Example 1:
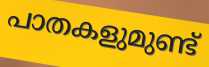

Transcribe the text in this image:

പാതകളുമുണ്ട്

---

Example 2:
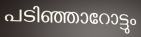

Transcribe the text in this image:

പടിഞ്ഞാറോട്ടും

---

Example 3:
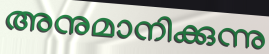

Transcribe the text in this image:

അനുമാനിക്കുന്നു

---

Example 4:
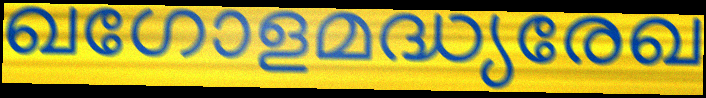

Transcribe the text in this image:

ഖഗോളമദ്ധ്യരേഖ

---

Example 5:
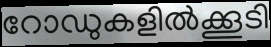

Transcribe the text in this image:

റോഡുകളിൽക്കൂടി